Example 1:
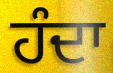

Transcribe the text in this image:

ਹੰਦਾ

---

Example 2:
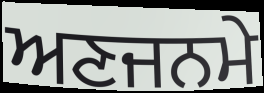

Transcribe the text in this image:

ਅਣਜਨਮੇ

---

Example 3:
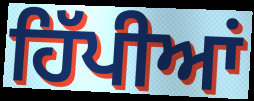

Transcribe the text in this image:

ਹਿੱਪੀਆਂ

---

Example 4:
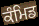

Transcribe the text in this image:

ਕੰਮਿਡ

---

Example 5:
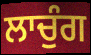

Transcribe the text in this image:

ਲਾਚੁੰਗ